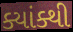
ક્યાંક્થી